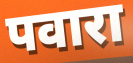
पवारा